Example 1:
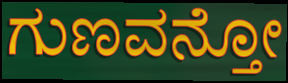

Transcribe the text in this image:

ಗುಣವನ್ತೋ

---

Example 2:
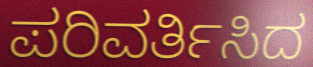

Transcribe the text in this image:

ಪರಿವರ್ತಿಸಿದ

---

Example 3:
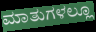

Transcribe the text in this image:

ಮಾತುಗಳಲ್ಲೂ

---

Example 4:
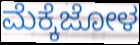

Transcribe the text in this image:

ಮೆಕ್ಕೆಜೋಳ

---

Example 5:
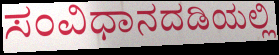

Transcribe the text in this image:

ಸಂವಿಧಾನದಡಿಯಲ್ಲಿ